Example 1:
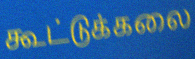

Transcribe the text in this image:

கூட்டுக்கலை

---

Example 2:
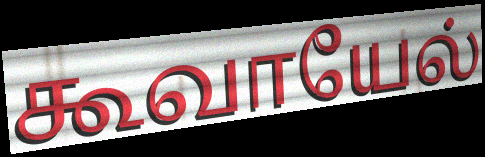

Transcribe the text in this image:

கூவாயேல்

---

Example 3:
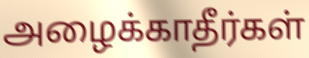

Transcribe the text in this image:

அழைக்காதீர்கள்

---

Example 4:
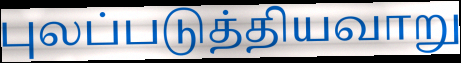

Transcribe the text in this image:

புலப்படுத்தியவாறு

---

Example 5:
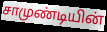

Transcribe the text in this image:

சாமுண்டியின்